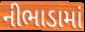
નીભાડામાં